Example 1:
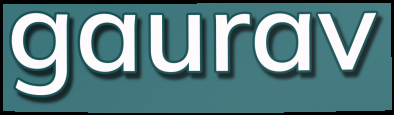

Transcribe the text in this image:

gaurav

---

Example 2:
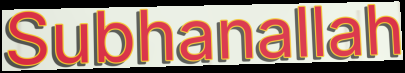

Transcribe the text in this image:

Subhanallah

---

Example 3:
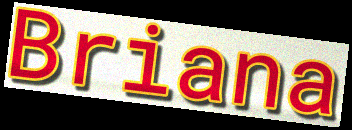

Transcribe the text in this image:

Briana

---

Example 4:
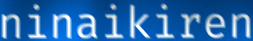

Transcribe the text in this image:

ninaikiren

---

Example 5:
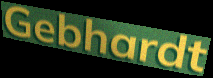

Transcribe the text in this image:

Gebhardt